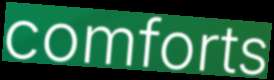
comforts